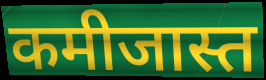
कमीजास्त